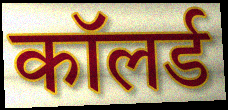
कॉलर्ड